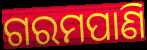
ଗରମପାଣି